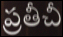
ప్రతీచీ